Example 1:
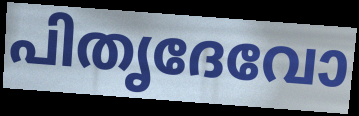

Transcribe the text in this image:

പിതൃദേവോ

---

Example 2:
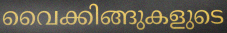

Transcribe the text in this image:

വൈക്കിങ്ങുകളുടെ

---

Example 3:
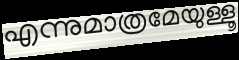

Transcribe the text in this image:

എന്നുമാത്രമേയുള്ളൂ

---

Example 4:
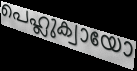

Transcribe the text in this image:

പെഹ്ലുക്വായോ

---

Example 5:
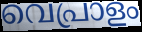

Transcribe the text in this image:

വെപ്രാളം